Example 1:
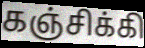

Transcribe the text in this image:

கஞ்சிக்கி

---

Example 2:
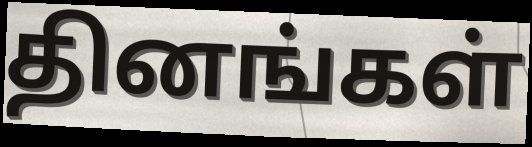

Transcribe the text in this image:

தினங்கள்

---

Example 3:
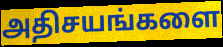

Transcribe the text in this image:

அதிசயங்களை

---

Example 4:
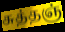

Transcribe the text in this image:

சுத்தஞ்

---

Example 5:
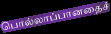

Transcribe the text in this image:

பொல்லாப்பானதைச்